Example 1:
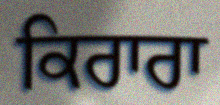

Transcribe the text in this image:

ਕਿਰਾਰਾ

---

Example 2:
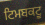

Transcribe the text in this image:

ਟਿਮਬਕਟੂ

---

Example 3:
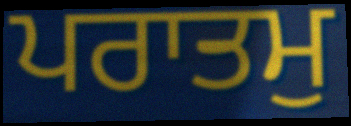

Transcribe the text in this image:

ਪਰਾਤਮੁ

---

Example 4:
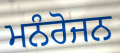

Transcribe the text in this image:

ਮਨੰਰੋਜਨ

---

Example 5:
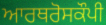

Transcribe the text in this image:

ਆਰਥਰੋਸਕੌਪੀ